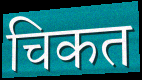
चिकत